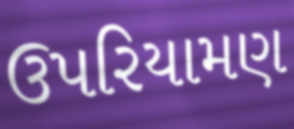
ઉપરિયામણ